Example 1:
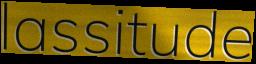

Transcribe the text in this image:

lassitude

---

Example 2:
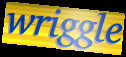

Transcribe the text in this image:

wriggle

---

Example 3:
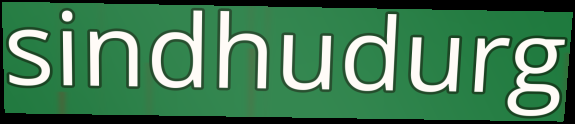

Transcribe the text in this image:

sindhudurg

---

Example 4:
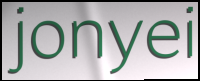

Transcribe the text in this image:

jonyei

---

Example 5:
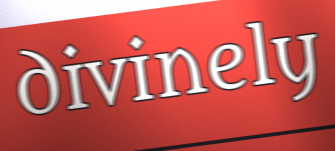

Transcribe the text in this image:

divinely